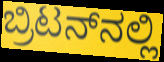
ಬ್ರಿಟನ್‌ನಲ್ಲಿ